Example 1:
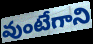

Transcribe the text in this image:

వుంటేగాని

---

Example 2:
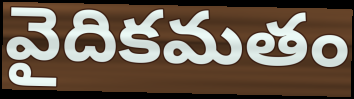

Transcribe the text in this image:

వైదికమతం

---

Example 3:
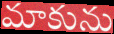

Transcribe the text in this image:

మాకును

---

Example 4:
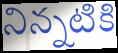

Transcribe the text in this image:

నిన్నటికి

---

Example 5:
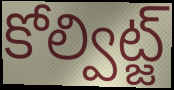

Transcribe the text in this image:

కోల్విట్జ్